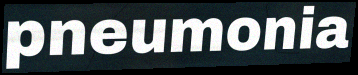
pneumonia